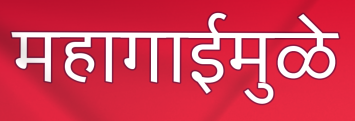
महागाईमुळे